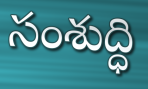
సంశుద్ధి